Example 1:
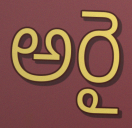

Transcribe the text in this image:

అరై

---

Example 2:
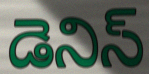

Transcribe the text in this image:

డెనిస్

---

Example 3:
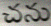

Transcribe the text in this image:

చను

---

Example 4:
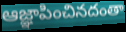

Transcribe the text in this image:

ఆజ్ఞాపించినదంతా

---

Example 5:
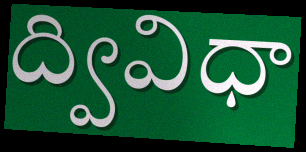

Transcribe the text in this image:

ద్వివిధా